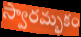
స్వారమ్భకం